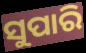
ସୁପାରି